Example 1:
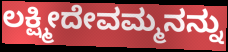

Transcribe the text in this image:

ಲಕ್ಷ್ಮೀದೇವಮ್ಮನನ್ನು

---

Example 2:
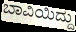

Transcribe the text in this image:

ಬಾವಿಯಿದ್ದು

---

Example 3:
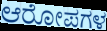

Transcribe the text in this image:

ಆರೋಪಗಳ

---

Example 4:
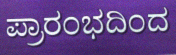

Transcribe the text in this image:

ಪ್ರಾರಂಭದಿಂದ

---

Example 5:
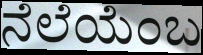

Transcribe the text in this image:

ನೆಲೆಯೆಂಬ